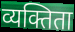
व्यक्तिता